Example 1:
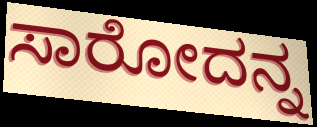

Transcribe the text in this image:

ಸಾರೋದನ್ನ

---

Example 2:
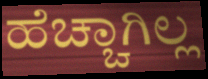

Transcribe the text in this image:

ಹೆಚ್ಚಾಗಿಲ್ಲ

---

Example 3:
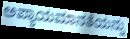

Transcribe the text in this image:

ಅಪ್ಯಾಯಮಾನತೆಯನ್ನು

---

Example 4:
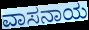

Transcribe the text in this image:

ವಾಸನಾಯ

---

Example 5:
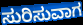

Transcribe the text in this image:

ಸುರಿಸುವಾಗ